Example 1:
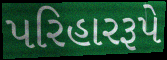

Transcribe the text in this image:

પરિહારરૂપે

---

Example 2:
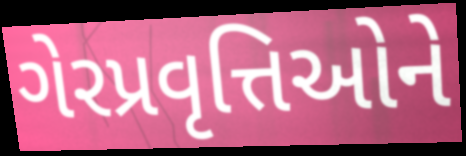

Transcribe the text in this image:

ગેરપ્રવૃત્તિઓને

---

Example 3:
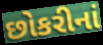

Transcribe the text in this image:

છોકરીનાં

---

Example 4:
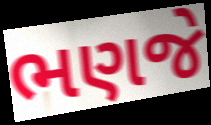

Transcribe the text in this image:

ભણજે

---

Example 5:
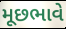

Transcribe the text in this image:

મૂછભાવે